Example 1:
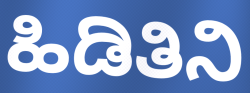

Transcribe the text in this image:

ಹಿಡಿತಿನಿ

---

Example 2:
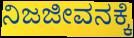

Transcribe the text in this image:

ನಿಜಜೀವನಕ್ಕೆ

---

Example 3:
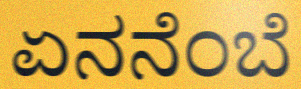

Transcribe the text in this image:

ಏನನೆಂಬೆ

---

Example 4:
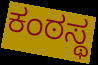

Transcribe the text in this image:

ಕಂಠಸ್ಥ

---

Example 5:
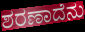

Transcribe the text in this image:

ಶರಣಾದೆನು